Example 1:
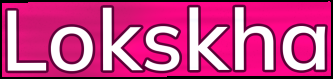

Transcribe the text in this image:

Lokskha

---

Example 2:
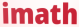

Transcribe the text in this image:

imath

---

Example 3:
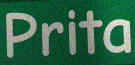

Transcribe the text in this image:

Prita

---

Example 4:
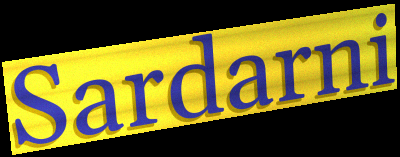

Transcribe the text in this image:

Sardarni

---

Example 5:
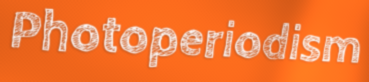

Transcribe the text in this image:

Photoperiodism